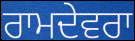
ਰਾਮਦੇਵਰਾ